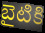
బైటికి